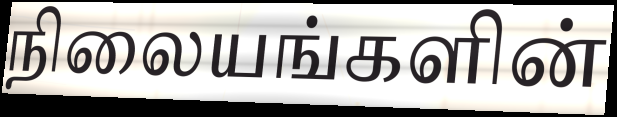
நிலையங்களின்